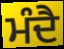
ਮੰਦੈ